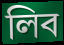
লিব